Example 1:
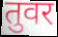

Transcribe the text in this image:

तुवर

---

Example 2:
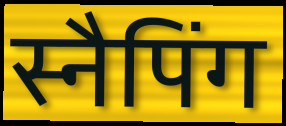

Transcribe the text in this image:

स्नैपिंग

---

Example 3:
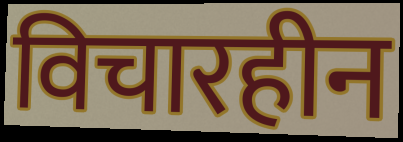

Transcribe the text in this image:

विचारहीन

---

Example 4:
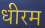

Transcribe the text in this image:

धीरम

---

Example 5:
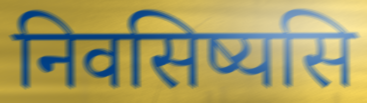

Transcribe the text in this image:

निवसिष्यसि